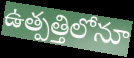
ఉత్పత్తిలోనూ